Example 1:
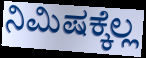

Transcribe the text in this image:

ನಿಮಿಷಕ್ಕೆಲ್ಲ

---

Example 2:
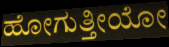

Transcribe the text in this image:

ಹೋಗುತ್ತೀಯೋ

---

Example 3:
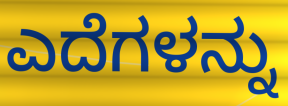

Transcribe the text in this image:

ಎದೆಗಳನ್ನು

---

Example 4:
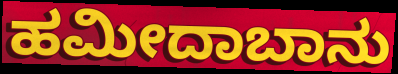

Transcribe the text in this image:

ಹಮೀದಾಬಾನು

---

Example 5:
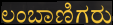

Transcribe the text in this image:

ಲಂಬಾಣಿಗರು